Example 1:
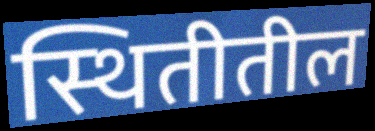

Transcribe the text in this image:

स्थितीतील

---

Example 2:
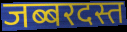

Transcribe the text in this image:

जब्बरदस्त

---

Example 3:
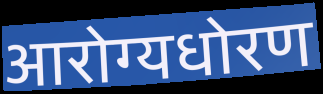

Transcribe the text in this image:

आरोग्यधोरण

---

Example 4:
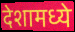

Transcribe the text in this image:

देशामध्ये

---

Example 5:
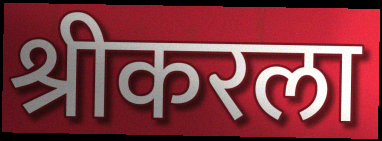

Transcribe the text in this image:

श्रीकरला